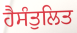
ਹੈਸੰਤੁਲਿਤ